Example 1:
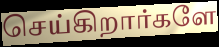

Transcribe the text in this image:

செய்கிறார்களே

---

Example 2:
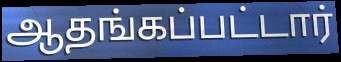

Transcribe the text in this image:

ஆதங்கப்பட்டார்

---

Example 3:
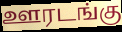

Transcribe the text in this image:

ஊரடங்கு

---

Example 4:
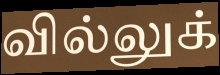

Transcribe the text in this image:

வில்லுக்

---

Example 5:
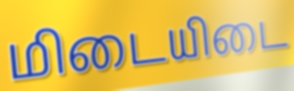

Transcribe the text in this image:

மிடையிடை